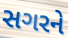
સગરને